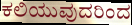
ಕಲಿಯುವುದರಿಂದ